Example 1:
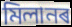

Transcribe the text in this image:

মিলানৰ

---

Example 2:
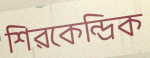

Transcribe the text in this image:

শিৱকেন্দ্ৰিক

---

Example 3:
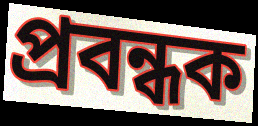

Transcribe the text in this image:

প্ৰবন্ধক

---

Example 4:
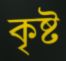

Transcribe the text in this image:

কৃষ্ট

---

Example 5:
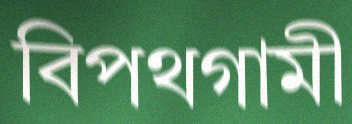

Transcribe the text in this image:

বিপথগামী